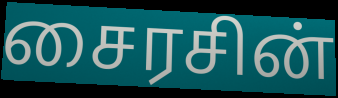
சைரசின்